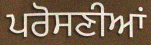
ਪਰੋਸਣੀਆਂ